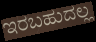
ಇರಬಹುದಲ್ಲ